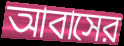
আবাসের